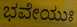
ಭವೇಯುಃ